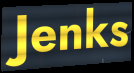
Jenks